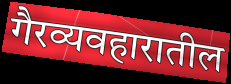
गैरव्यवहारातील